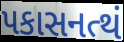
પકાસનત્થં